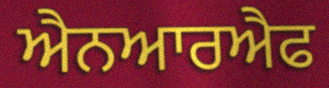
ਐਨਆਰਐਫ